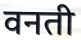
वनती